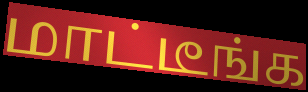
மாட்டீங்க